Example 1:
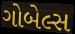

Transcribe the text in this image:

ગોબેલ્સ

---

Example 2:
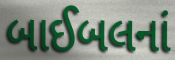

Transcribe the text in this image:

બાઈબલનાં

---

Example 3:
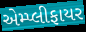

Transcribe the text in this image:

એમ્પ્લીફાયર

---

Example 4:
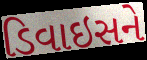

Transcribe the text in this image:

ડિવાઇસને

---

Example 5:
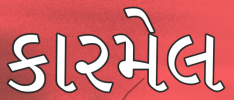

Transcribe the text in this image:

કારમેલ